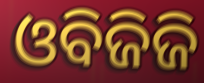
ଓବିଜିଜି